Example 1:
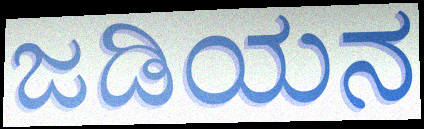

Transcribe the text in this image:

ಜಡಿಯನ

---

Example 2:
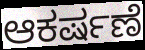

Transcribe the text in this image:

ಆಕರ್ಷಣೆ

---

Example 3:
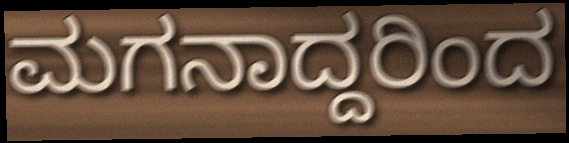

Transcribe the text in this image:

ಮಗನಾದ್ದರಿಂದ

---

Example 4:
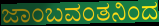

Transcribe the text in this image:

ಜಾಂಬವಂತನಿಂದ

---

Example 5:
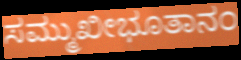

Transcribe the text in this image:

ಸಮ್ಮುಖೀಭೂತಾನಂ